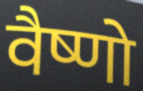
वैष्‍णो